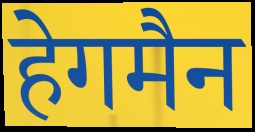
हेगमैन